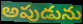
అపుడును